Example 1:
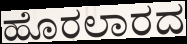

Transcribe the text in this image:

ಹೊರಲಾರದ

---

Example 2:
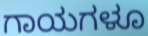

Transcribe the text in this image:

ಗಾಯಗಳೂ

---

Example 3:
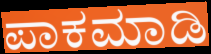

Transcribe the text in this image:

ಪಾಕಮಾಡಿ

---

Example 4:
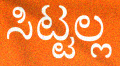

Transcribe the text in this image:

ಸಿಟ್ಟಲ್ಲ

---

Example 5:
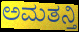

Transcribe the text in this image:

ಅಮತನ್ತಿ